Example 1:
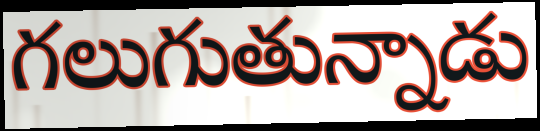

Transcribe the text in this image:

గలుగుతున్నాడు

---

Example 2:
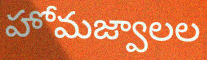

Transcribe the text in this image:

హోమజ్వాలల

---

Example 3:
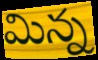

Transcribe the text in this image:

మిన్న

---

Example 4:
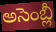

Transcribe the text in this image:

అసెంబ్లీ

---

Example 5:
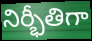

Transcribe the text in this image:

నిర్భీతిగా